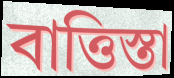
বাত্তিস্তা